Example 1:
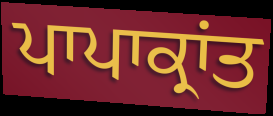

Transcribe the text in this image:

ਪਾਪਾਕ੍ਰਾਂਤ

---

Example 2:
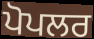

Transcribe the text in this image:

ਪੋਪਲਰ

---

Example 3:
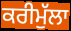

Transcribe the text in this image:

ਕਰੀਮੁੱਲਾ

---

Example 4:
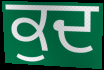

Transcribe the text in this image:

ਕੁਦ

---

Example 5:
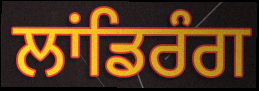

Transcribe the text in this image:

ਲਾਂਡਿਰੰਗ